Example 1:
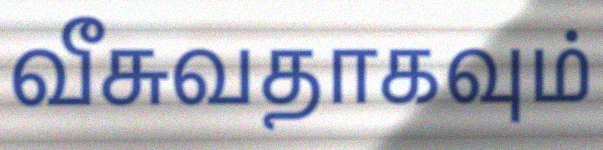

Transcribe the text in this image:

வீசுவதாகவும்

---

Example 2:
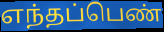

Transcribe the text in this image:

எந்தப்பெண்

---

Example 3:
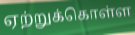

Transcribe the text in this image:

ஏற்றுக்கொள்ள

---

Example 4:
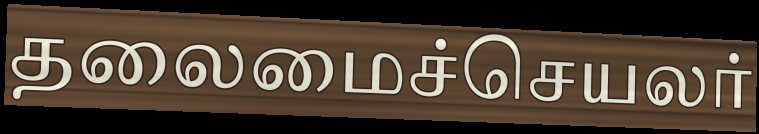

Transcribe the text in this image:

தலைமைச்செயலர்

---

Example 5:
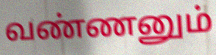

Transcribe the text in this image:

வண்ணனும்